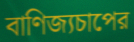
বাণিজ্যচাপের